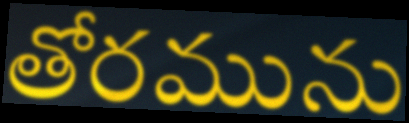
తోరమును